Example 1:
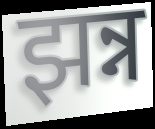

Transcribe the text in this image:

झन्न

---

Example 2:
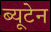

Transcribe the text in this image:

ब्यूटेन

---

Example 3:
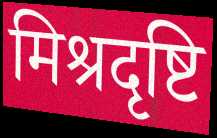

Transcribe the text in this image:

मिश्रदृष्टि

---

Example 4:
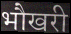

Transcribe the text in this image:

भौखरी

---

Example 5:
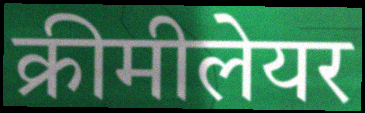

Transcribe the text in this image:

क्रीमीलेयर